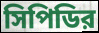
সিপিডির